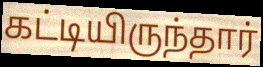
கட்டியிருந்தார்